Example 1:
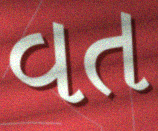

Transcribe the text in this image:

વત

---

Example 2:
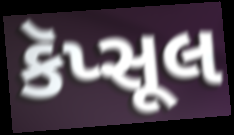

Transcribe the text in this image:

કૅપ્સૂલ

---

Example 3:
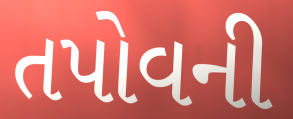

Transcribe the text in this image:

તપોવની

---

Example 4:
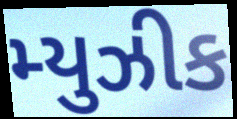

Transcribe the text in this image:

મ્યુઝીક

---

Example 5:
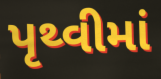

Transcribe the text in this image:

પૃથ્વીમાં